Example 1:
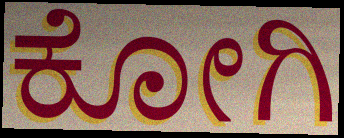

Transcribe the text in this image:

ಕೋಗಿ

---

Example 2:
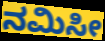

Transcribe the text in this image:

ನಮಿಸೀ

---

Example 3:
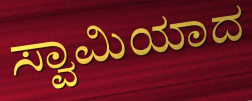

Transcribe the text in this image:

ಸ್ವಾಮಿಯಾದ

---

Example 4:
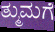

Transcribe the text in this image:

ತ್ಮುಮಗೆ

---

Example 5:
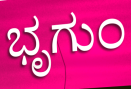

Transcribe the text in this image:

ಭೃಗುಂ